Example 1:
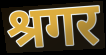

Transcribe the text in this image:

श्रगर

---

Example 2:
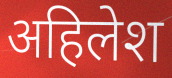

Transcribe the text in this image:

अहिलेश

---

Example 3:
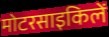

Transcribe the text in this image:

मोटरसाइकिलें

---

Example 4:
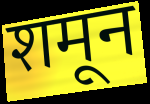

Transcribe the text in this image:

शमून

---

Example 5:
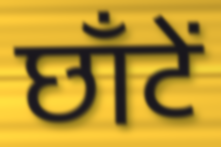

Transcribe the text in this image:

छाँटें